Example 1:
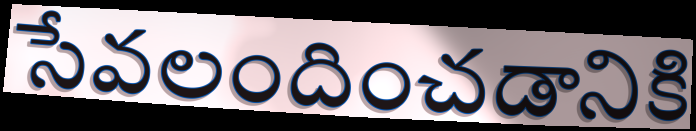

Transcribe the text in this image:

సేవలందించడానికి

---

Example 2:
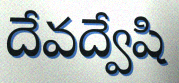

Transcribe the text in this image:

దేవద్వేషి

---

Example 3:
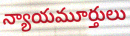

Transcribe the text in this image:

న్యాయమూర్తులు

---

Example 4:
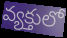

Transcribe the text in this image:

వ్యక్తులో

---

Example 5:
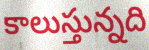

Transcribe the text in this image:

కాలుస్తున్నది